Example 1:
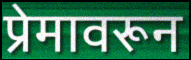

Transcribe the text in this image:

प्रेमावरून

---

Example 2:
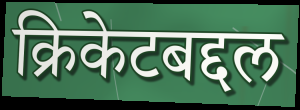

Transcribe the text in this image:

क्रिकेटबद्दल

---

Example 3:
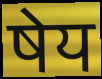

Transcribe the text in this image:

षेय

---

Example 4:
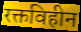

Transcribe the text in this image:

रक्तविहीन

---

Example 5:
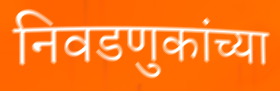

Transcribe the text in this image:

निवडणुकांच्या